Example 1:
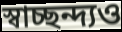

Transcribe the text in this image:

স্বাচ্ছন্দ্যও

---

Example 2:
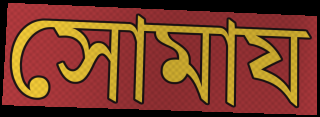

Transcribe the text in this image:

সোমায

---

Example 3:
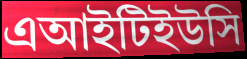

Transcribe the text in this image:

এআইটিইউসি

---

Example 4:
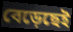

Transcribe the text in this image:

বেড়েছেই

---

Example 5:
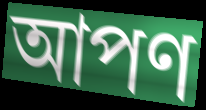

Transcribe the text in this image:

আপণ